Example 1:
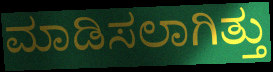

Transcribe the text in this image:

ಮಾಡಿಸಲಾಗಿತ್ತು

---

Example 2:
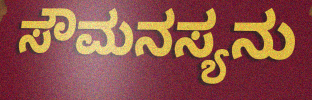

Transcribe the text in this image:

ಸೌಮನಸ್ಯನು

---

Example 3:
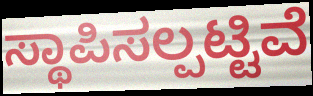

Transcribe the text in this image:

ಸ್ಥಾಪಿಸಲ್ಪಟ್ಟಿವೆ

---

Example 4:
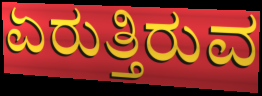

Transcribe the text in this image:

ಏರುತ್ತಿರುವ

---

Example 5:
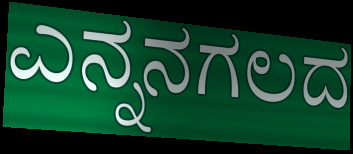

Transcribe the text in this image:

ಎನ್ನನಗಲದ